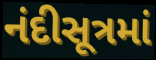
નંદીસૂત્રમાં